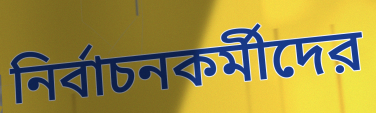
নির্বাচনকর্মীদের